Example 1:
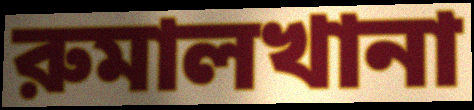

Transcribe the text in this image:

রুমালখানা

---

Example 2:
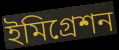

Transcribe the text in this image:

ইমিগ্রেশন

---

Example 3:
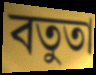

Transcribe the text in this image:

বতুতা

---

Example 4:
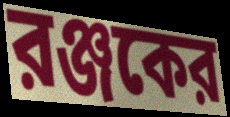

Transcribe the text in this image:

রঞ্জকের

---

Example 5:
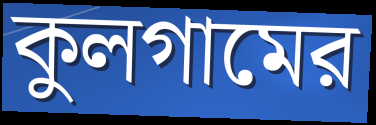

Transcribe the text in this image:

কুলগামের